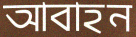
আবাহন